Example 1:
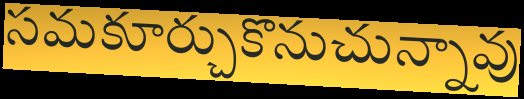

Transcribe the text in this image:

సమకూర్చుకొనుచున్నావు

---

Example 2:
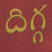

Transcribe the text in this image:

దిగ్గ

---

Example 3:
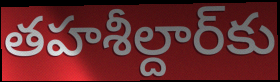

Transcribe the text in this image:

తహశీల్దార్‌కు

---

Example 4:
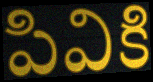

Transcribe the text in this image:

పివికి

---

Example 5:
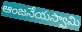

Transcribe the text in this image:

ఆంజనేయస్వామి